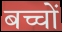
बच्चों